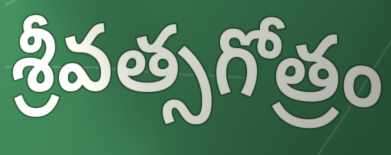
శ్రీవత్సగోత్రం